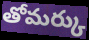
తోమర్కు